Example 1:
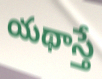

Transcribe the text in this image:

యథాస్తే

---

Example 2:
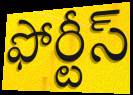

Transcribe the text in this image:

ఫోర్టీస్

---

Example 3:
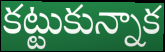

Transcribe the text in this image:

కట్టుకున్నాక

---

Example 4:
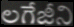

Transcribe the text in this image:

లగేజీని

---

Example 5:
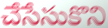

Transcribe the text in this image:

చేసేసుకొని